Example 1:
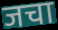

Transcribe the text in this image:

जचा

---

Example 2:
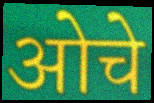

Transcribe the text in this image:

ओचे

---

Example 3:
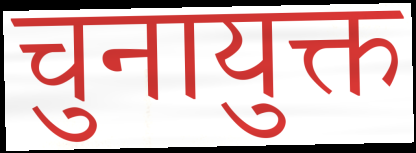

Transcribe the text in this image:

चुनायुक्त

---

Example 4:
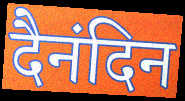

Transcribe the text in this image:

दैनंदिन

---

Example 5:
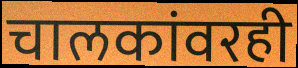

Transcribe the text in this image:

चालकांवरही